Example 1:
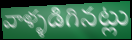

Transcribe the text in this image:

వాళ్ళడిగినట్లు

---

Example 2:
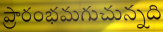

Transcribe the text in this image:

ప్రారంభమగుచున్నది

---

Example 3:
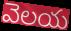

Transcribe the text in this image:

వెలయ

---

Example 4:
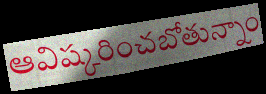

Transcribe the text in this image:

ఆవిష్కరించబోతున్నాం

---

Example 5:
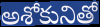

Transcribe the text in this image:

అశోకునితో